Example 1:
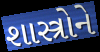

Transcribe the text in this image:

શાસ્ત્રોને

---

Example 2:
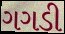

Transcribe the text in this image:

ગગડી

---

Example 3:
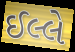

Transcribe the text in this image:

ઈલ્લે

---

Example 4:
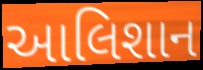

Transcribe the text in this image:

આલિશાન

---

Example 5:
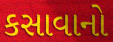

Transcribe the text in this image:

કસાવાનો